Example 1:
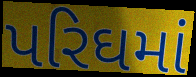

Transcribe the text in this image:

પરિઘમાં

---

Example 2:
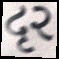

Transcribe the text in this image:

દૃર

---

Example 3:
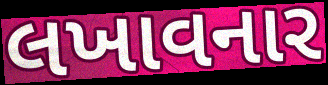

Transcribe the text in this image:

લખાવનાર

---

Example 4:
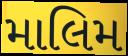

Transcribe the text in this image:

માલિમ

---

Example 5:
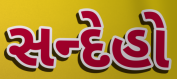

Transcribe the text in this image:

સન્દેહો